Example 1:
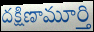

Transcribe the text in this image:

దక్షిణామూర్తి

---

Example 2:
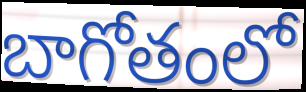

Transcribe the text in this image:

బాగోతంలో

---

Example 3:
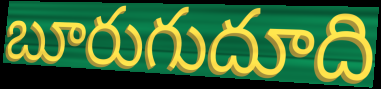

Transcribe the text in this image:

బూరుగుదూది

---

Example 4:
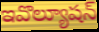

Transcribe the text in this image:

ఇవొల్యూషన్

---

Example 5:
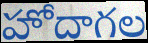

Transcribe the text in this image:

హోదాగల